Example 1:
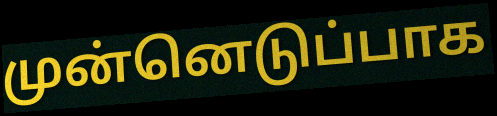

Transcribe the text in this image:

முன்னெடுப்பாக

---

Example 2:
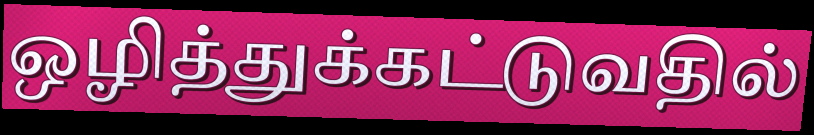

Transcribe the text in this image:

ஒழித்துக்கட்டுவதில்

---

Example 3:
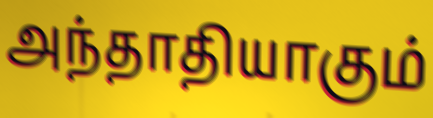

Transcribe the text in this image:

அந்தாதியாகும்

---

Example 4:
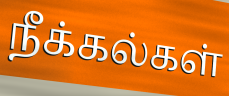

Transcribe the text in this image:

நீக்கல்கள்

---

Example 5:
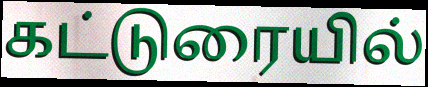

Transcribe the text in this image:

கட்டுரையில்